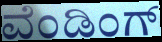
ವೆಂಡಿಂಗ್